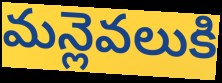
మన్లెవలుకి